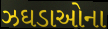
ઝઘડાઓના